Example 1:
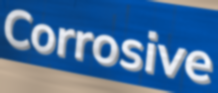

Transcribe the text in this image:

Corrosive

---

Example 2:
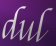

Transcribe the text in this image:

dul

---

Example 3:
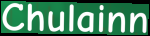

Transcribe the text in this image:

Chulainn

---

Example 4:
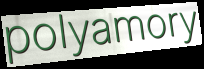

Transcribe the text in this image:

polyamory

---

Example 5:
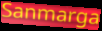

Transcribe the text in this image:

Sanmarga